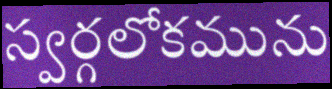
స్వర్గలోకమును